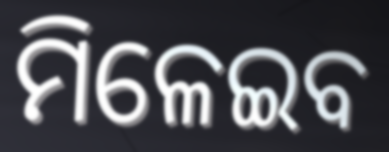
ମିଳେଇବ